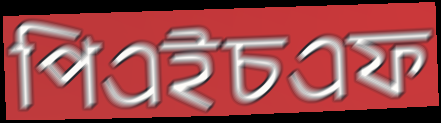
পিএইচএফ